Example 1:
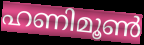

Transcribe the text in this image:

ഹണിമൂൺ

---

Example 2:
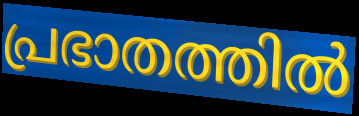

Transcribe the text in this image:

പ്രഭാതത്തിൽ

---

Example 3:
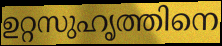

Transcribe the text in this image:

ഉറ്റസുഹൃത്തിനെ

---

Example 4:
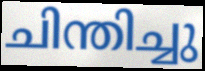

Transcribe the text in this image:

ചിന്തിച്ചു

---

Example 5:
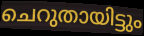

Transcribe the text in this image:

ചെറുതായിട്ടും